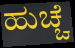
ಹುಚ್ಚೆ